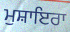
ਮੁਸ਼ਾਇਰਾ